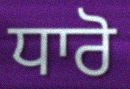
ਧਾਰੋ